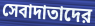
সেবাদাতাদের